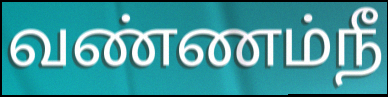
வண்ணம்நீ